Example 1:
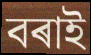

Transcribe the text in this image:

বৰাই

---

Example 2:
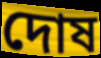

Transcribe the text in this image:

দোষ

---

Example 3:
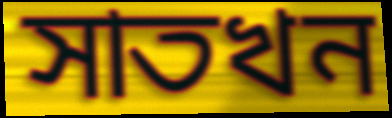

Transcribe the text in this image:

সাতখন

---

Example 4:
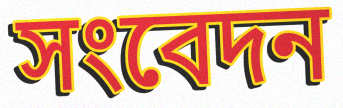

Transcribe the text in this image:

সংবেদন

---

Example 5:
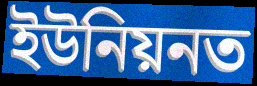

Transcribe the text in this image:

ইউনিয়নত